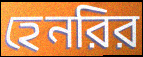
হেনরির